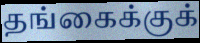
தங்கைக்குக்